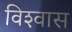
विश्‍वास